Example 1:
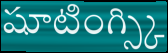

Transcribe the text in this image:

షూటింగ్స్కి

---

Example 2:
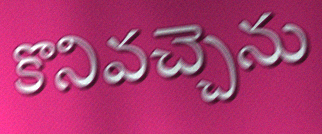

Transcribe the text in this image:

కొనివచ్చెను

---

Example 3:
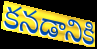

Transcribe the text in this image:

కనడానికి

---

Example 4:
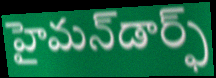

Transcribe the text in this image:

హైమన్‌డార్ఫ్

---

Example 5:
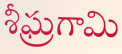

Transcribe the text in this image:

శీఘ్రగామి